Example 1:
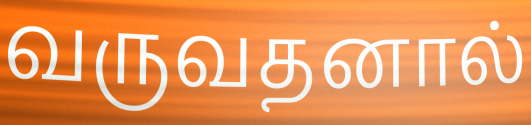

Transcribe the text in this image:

வருவதனால்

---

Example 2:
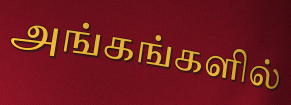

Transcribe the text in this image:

அங்கங்களில்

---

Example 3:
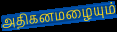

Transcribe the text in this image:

அதிகனமழையும்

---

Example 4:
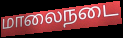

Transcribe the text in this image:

மாலைநடை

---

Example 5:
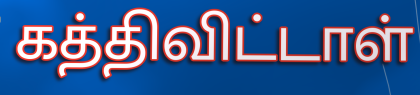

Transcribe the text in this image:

கத்திவிட்டாள்